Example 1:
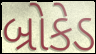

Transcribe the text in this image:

બ્રોકેડ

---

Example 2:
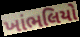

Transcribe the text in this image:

ખાંભલિયો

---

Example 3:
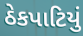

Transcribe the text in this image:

ઠેકપાટિયું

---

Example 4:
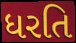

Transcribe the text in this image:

ધરતિ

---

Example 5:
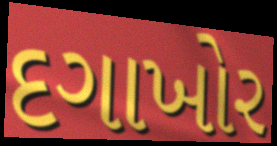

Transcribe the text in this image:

દગાખોર